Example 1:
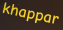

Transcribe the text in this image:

khappar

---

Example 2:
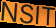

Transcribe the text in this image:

NSIT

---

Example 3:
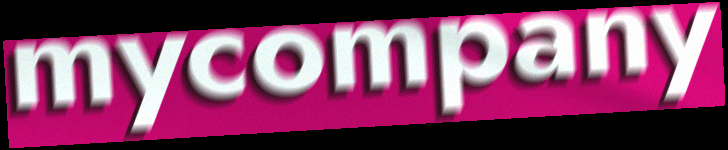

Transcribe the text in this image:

mycompany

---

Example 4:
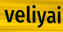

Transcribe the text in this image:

veliyai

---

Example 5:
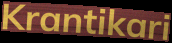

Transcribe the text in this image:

Krantikari